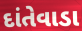
દાંતેવાડા